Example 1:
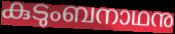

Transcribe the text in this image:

കുടുംബനാഥനു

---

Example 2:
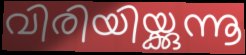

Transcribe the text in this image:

വിരിയിയ്ക്കുന്നൂ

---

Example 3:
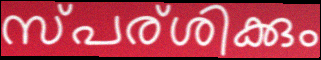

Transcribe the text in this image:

സ്പര്ശിക്കും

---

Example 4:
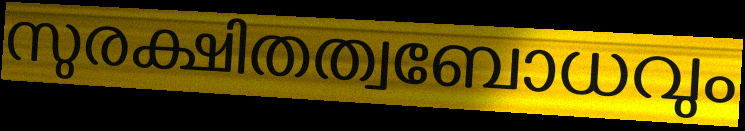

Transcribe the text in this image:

സുരക്ഷിതത്വബോധവും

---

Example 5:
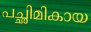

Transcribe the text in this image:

പച്ഛിമികായ